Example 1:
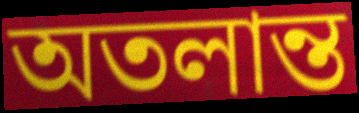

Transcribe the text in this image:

অতলান্ত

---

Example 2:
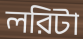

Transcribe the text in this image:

লরিটা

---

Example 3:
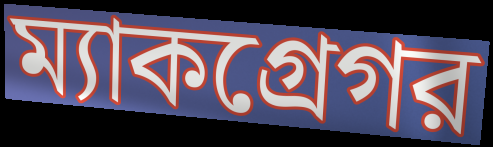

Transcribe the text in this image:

ম্যাকগ্রেগর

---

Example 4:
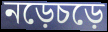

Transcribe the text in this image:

নড়েচড়ে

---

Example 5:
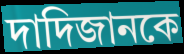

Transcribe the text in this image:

দাদিজানকে